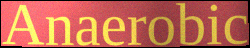
Anaerobic